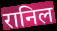
रानिल